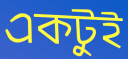
একটুই